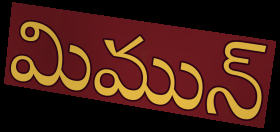
మిమున్